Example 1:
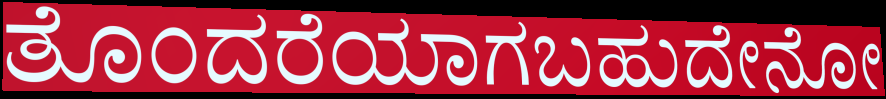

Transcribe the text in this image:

ತೊಂದರೆಯಾಗಬಹುದೇನೋ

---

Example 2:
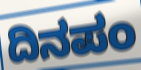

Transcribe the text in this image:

ದಿನಪಂ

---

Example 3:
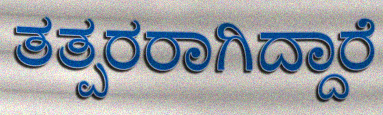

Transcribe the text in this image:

ತತ್ಪರರಾಗಿದ್ದಾರೆ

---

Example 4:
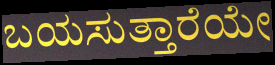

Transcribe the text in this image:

ಬಯಸುತ್ತಾರೆಯೇ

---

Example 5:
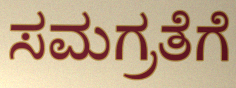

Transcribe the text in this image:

ಸಮಗ್ರತೆಗೆ